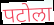
पटोला